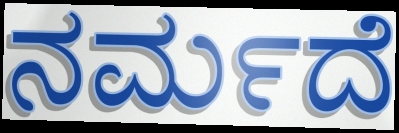
ನರ್ಮದೆ